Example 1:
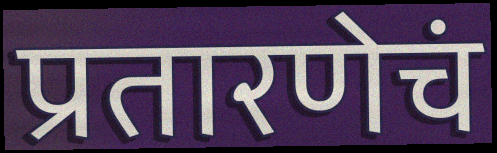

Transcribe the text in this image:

प्रतारणेचं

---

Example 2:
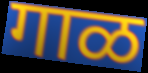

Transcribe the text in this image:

गाळ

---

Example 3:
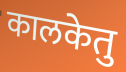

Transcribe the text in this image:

कालकेतु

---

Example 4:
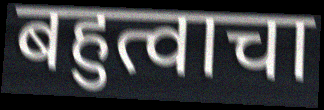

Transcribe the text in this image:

बहुत्वाचा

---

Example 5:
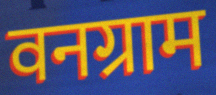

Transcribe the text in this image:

वनग्राम